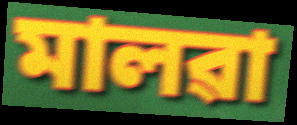
মালৱা